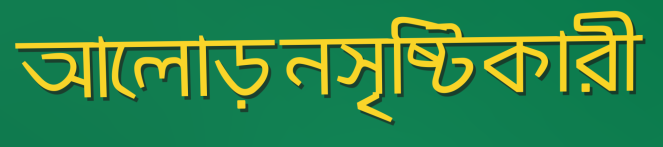
আলোড়নসৃষ্টিকারী